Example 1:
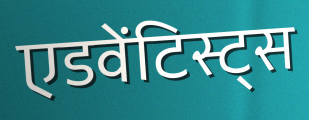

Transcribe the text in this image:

एडवेंटिस्ट्स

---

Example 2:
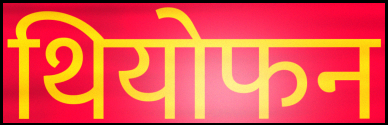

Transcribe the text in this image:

थियोफन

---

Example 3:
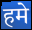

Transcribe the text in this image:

हमे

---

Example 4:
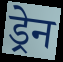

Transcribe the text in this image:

ड्रेन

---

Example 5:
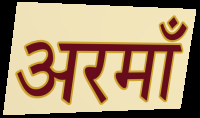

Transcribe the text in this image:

अरमाँ